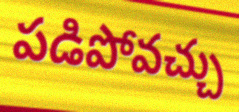
పడిపోవచ్చు